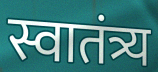
स्वातंत्र्य